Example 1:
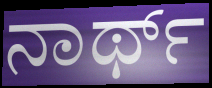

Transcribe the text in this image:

ನಾರ್ಥ್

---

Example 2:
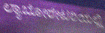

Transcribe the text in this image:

ಲ್ಯಾಬೋರೇಟರಿಯಲ್ಲಿ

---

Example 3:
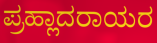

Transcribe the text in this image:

ಪ್ರಹ್ಲಾದರಾಯರ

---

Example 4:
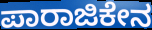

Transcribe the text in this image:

ಪಾರಾಜಿಕೇನ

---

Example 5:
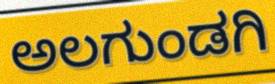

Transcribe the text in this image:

ಅಲಗುಂಡಗಿ